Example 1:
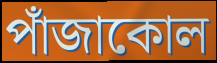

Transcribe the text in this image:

পাঁজাকোল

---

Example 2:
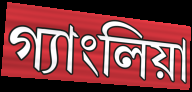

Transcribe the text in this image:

গ্যাংলিয়া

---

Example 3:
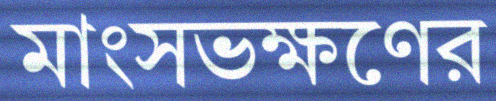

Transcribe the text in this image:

মাংসভক্ষণের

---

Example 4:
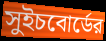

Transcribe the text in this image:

সুইচবোর্ডের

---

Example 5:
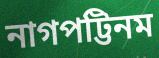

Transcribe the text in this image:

নাগপট্টিনম